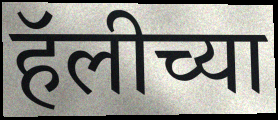
हॅलीच्या